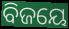
ବିଜୟେ